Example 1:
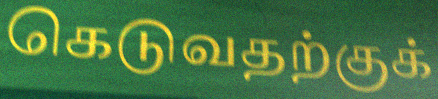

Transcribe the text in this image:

கெடுவதற்குக்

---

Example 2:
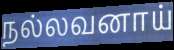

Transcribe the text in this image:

நல்லவனாய்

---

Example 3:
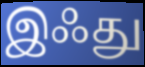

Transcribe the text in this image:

இஃது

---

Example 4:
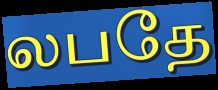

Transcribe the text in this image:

லபதே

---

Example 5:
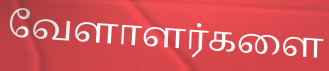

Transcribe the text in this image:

வேளாளர்களை